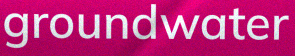
groundwater